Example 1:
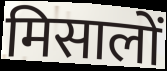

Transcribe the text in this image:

मिसालों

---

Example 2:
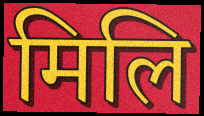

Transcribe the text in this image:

मिलि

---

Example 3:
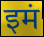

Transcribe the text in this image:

इमं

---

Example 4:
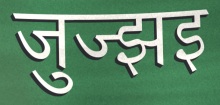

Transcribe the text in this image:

जुज्झइ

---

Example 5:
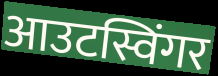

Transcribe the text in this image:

आउटस्विंगर